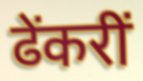
ढेंकरीं